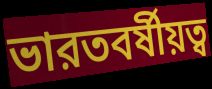
ভারতবর্ষীয়ত্ব